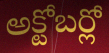
అక్టోబర్లో